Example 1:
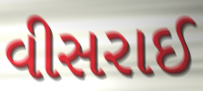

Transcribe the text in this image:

વીસરાઈ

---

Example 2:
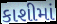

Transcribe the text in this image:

કાશીમાં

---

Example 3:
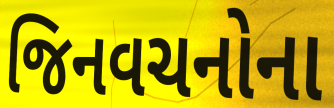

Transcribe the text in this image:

જિનવચનોના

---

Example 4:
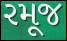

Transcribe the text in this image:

રમૂજ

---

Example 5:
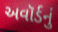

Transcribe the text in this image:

અવૉર્ડનું